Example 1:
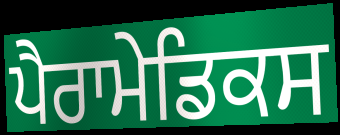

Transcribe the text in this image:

ਪੈਰਾਮੇਡਿਕਸ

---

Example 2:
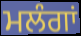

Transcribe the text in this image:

ਮਲੰਗਾਂ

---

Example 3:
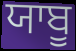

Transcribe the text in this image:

ਯਾਬੂ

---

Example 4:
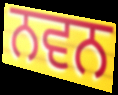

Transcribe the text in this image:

ਨਵਨ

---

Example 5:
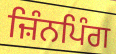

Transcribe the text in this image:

ਜ਼ਿੰਨਪਿੰਗ